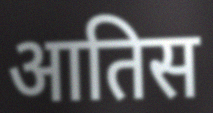
आतिस